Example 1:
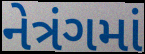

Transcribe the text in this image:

નેત્રંગમાં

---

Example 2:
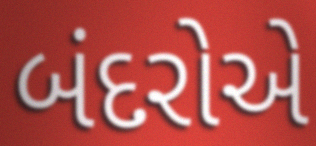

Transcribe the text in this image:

બંદરોએ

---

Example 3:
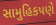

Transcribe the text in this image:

સામુહિકપણે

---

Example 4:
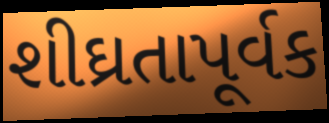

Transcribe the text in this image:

શીઘ્રતાપૂર્વક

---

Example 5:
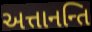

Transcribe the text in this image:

અત્તાનન્તિ